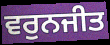
ਵਰੁਨਜੀਤ